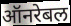
ऑनरेबल